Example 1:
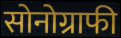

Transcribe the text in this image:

सोनोग्राफी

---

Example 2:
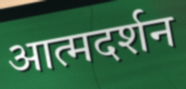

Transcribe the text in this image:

आत्मदर्शन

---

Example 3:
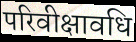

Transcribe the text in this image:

परिवीक्षावधि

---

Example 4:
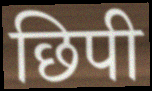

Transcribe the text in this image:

छिपी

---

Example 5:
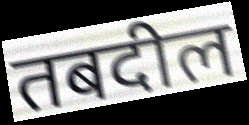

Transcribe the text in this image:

तबदील